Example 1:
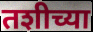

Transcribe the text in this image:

तशीच्या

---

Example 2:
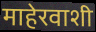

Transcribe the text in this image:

माहेरवाशी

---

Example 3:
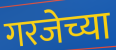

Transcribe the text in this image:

गरजेच्या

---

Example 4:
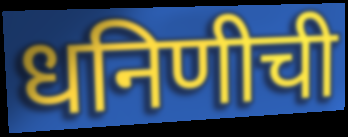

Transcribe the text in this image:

धनिणीची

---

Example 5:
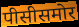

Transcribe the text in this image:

पीसीसमोर